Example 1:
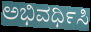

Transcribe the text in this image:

ಅಭಿವರ್ಧಿಸಿ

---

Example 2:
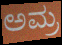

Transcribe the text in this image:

ಅಮ್ರ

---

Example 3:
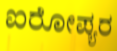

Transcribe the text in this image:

ಐರೋಪ್ಯರ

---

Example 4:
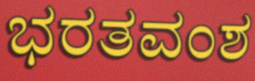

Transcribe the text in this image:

ಭರತವಂಶ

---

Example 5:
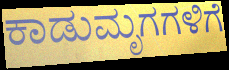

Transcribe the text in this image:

ಕಾಡುಮೃಗಗಳಿಗೆ